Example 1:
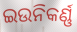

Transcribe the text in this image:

ଇଉନିକର୍ଣ୍ଣ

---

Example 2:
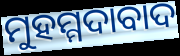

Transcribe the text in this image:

ମୁହମ୍ମଦାବାଦ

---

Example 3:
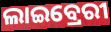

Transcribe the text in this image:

ଲାଇବ୍ରେରୀ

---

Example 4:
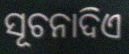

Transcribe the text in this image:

ସୂଚନାଦିଏ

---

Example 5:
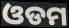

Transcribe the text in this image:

ଓଡମ